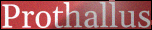
Prothallus